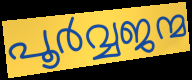
പൂർവ്വജന്മ